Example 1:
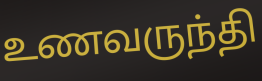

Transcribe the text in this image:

உணவருந்தி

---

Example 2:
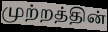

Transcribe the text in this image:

முற்றத்தின்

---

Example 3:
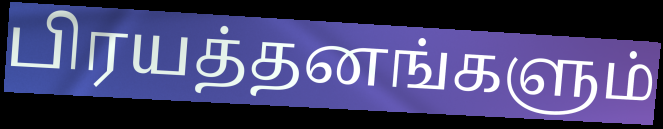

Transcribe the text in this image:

பிரயத்தனங்களும்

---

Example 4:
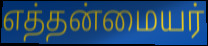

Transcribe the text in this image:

எத்தன்மையர்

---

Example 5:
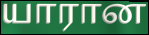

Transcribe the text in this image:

யாரான